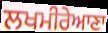
ਲਖਮੀਰੇਆਣਾ